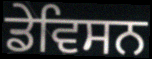
ਡੇਵਿਸਨ